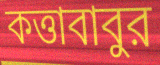
কত্তাবাবুর